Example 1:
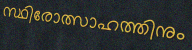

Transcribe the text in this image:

സ്ഥിരോത്സാഹത്തിനും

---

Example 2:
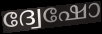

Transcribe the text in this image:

ദ്വേഷോ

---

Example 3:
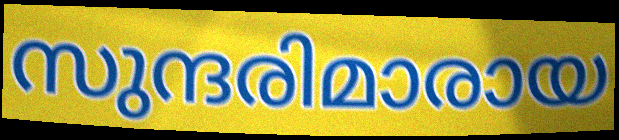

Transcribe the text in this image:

സുന്ദരിമാരായ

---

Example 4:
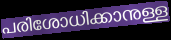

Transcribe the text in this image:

പരിശോധിക്കാനുള്ള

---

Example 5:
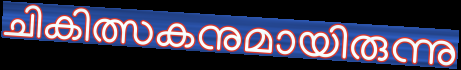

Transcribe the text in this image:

ചികിത്സകനുമായിരുന്നു